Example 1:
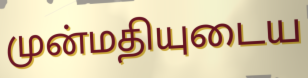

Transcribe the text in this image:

முன்மதியுடைய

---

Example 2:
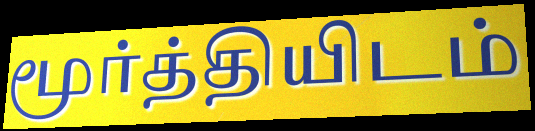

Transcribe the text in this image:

மூர்த்தியிடம்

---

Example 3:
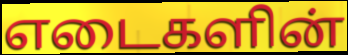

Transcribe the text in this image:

எடைகளின்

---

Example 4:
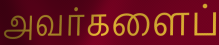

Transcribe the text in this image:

அவர்களைப்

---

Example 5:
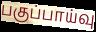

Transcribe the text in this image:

பகுப்பாய்வு